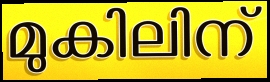
മുകിലിന്